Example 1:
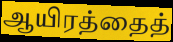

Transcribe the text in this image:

ஆயிரத்தைத்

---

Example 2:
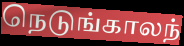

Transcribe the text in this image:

நெடுங்காலந்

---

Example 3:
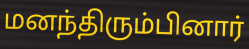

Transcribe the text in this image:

மனந்திரும்பினார்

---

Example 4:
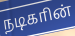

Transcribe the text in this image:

நடிகரின்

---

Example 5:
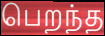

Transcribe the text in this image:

பெறந்த